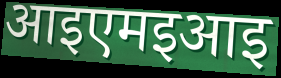
आइएमइआइ